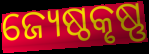
ଜ୍ୟେଷ୍ଠକୃଷ୍ଣ